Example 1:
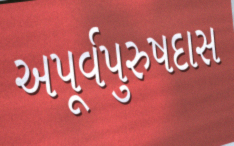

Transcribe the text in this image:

અપૂર્વપુરુષદાસ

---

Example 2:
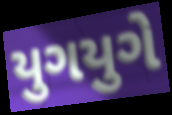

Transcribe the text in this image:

યુગયુગે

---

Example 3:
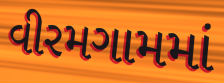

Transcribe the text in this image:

વીરમગામમાં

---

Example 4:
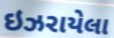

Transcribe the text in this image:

ઇઝરાયેલા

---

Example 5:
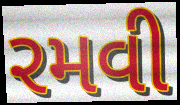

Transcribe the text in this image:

રમવી